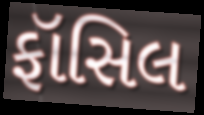
ફૉસિલ